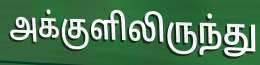
அக்குளிலிருந்து